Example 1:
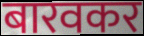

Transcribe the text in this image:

बारवकर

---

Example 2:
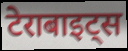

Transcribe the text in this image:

टेराबाइट्स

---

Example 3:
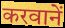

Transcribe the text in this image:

करवानें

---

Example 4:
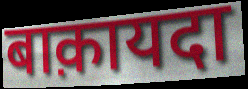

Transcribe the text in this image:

बाक़ायदा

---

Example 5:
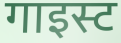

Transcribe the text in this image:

गाइस्ट